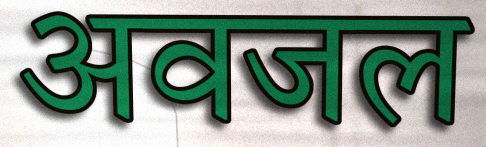
अवजल